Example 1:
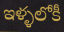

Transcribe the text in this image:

ఇళ్ళలోకీ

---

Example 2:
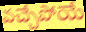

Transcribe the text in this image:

వచ్చేపోయే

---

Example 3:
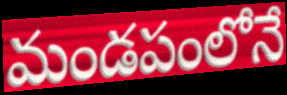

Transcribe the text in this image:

మండపంలోనే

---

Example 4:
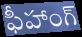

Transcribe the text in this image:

ఫీహాంగ్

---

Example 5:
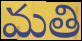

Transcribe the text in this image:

మతి